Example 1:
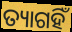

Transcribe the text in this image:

ତ୍ୟାଗହିଁ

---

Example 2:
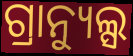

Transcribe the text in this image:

ଗ୍ରାନ୍ୟୁଲ୍ସ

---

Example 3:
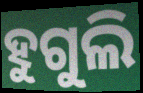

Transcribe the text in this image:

ହୁଗୁଲି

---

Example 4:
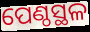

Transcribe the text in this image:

ପେଣ୍ଠସ୍ଥଳ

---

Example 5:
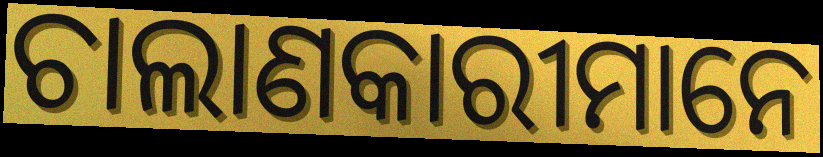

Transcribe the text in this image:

ଚାଲାଣକାରୀମାନେ